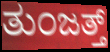
ತುಂಜತ್ತ್